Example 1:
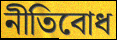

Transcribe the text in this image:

নীতিবোধ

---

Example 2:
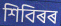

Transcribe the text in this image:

শিবিৰৰ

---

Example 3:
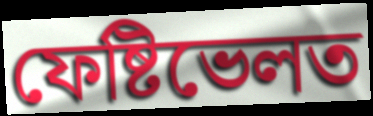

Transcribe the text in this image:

ফেষ্টিভেলত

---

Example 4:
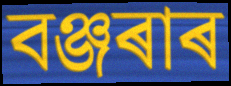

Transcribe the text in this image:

বঞ্জৰাৰ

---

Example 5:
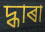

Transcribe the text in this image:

দ্ধাৰা